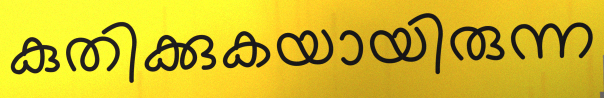
കുതിക്കുകയായിരുന്ന